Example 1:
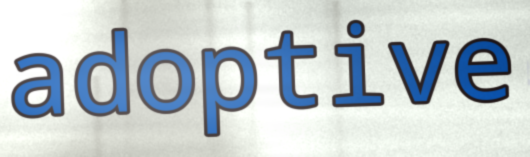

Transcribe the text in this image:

adoptive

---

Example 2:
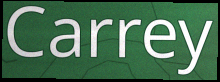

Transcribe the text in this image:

Carrey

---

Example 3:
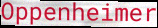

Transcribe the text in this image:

Oppenheimer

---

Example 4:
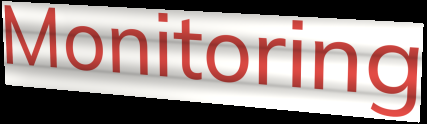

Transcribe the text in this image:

Monitoring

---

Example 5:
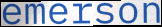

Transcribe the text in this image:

emerson